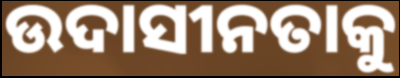
ଉଦାସୀନତାକୁ